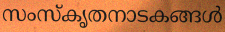
സംസ്കൃതനാടകങ്ങൾ